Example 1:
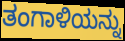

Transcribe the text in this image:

ತಂಗಾಳಿಯನ್ನು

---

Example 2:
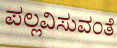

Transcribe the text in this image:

ಪಲ್ಲವಿಸುವಂತೆ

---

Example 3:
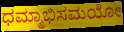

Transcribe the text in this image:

ಧಮ್ಮಾಭಿಸಮಯೋ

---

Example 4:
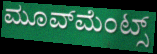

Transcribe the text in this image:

ಮೂವ್‍ಮೆಂಟ್ಸ್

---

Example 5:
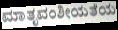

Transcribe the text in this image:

ಮಾತೃವಂಶೀಯತೆಯ